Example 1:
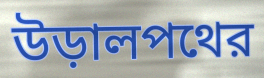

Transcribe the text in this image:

উড়ালপথের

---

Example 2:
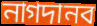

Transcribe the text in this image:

নাগদানব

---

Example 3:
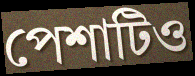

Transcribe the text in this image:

পেশাটিও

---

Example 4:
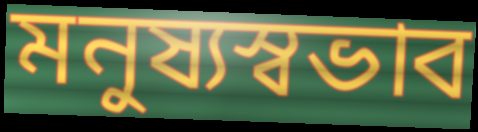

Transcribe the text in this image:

মনুষ্যস্বভাব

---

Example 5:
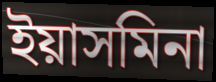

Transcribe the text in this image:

ইয়াসমিনা